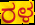
ರಳ